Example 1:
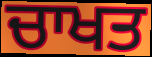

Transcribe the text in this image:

ਚਾਖਤ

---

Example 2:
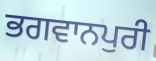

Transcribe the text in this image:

ਭਗਵਾਨਪੁਰੀ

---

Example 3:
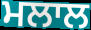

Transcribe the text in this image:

ਮਲਾਲ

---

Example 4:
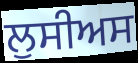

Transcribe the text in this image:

ਲੁਸੀਅਸ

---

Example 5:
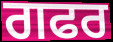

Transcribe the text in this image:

ਗਫਰ